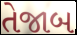
તેજાબ